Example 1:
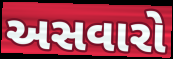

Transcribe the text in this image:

અસવારો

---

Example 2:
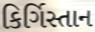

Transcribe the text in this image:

કિર્ગિસ્તાન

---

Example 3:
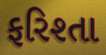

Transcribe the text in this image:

ફરિશ્તા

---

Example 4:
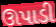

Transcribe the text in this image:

ઊપાડી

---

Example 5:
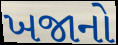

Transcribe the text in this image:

ખજાનો